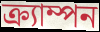
ক্র্যাম্পন